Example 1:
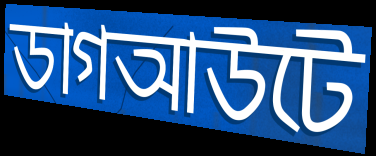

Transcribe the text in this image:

ডাগআউটে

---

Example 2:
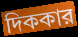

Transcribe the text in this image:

দিককার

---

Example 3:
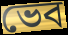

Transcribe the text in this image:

ভেব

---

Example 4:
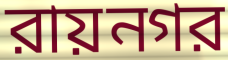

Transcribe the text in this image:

রায়নগর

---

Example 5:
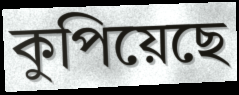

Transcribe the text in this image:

কুপিয়েছে